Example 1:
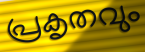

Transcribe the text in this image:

പ്രകൃതവും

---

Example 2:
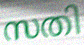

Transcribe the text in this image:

സതി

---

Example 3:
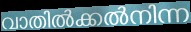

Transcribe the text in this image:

വാതിൽക്കൽനിന്ന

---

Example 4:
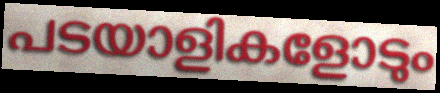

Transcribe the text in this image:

പടയാളികളോടും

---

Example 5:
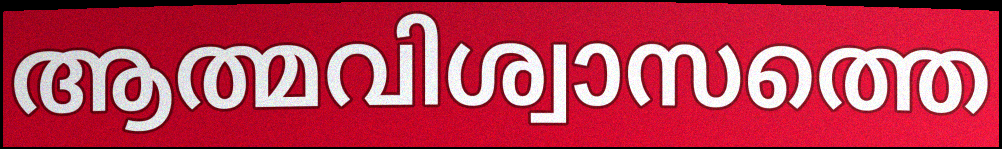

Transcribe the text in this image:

ആത്മവിശ്വാസത്തെ